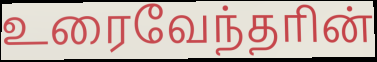
உரைவேந்தரின்